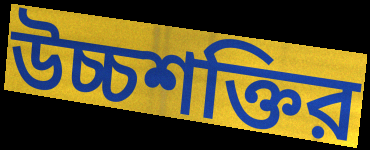
উচ্চশক্তির